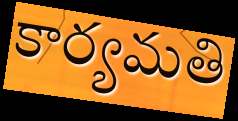
కార్యమతి